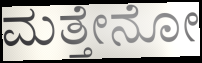
ಮತ್ತೇನೋ